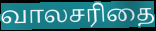
வாலசரிதை